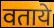
वताये